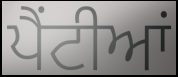
ਪੈਂਟੀਆਂ